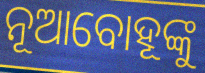
ନୂଆବୋହୂଙ୍କୁ